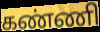
கண்ணி